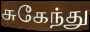
சுகேந்து